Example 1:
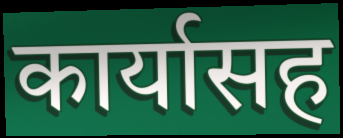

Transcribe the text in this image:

कार्यासह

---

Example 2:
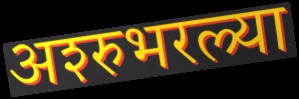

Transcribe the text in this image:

अश्रुभरल्या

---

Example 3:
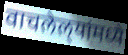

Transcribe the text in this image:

वाचलेल्यांमध्ये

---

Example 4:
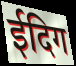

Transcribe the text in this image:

ईदिग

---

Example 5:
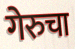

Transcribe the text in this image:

गेरुचा